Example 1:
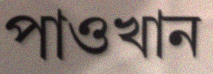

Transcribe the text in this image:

পাওখান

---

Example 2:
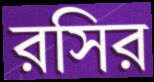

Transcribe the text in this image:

রসির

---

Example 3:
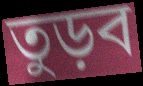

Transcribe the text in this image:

তুড়ব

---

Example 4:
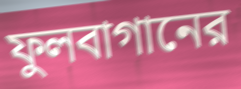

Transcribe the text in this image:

ফুলবাগানের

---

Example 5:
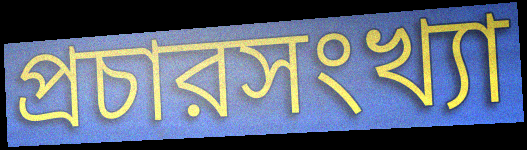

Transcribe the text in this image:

প্রচারসংখ্যা